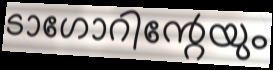
ടാഗോറിന്റേയും